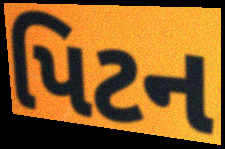
પિટન